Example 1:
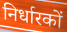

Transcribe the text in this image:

निर्धारकों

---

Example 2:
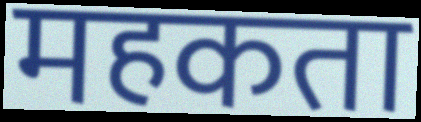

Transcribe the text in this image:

महकता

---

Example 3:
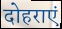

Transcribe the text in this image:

दोहराएं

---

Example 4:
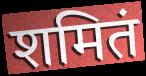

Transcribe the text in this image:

शमितं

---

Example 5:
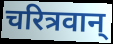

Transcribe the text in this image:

चरित्रवान्